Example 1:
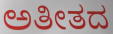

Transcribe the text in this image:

ಅತೀತದ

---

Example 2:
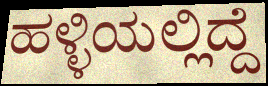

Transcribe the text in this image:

ಹಳ್ಳಿಯಲ್ಲಿದ್ದೆ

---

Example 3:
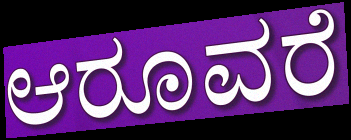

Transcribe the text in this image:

ಆರೂವರೆ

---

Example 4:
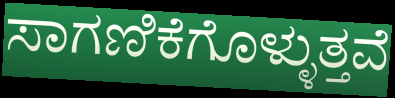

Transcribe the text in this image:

ಸಾಗಣಿಕೆಗೊಳ್ಳುತ್ತವೆ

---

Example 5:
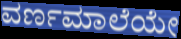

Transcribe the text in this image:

ವರ್ಣಮಾಲೆಯೇ